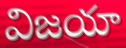
విజయా